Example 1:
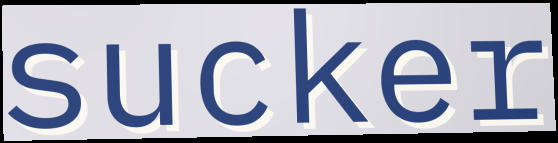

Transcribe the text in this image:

sucker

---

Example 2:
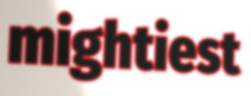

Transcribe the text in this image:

mightiest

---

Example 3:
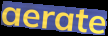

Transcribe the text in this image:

aerate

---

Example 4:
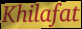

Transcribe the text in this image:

Khilafat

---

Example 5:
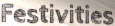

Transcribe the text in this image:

Festivities